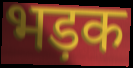
भड़क